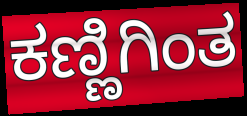
ಕಣ್ಣಿಗಿಂತ